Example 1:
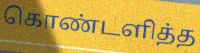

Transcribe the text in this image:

கொண்டளித்த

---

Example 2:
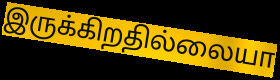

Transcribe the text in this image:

இருக்கிறதில்லையா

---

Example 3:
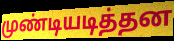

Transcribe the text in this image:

முண்டியடித்தன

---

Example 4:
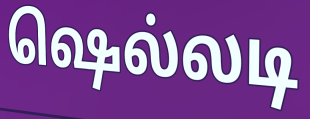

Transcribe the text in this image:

ஷெல்லடி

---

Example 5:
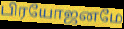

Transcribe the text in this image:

பிரயோஜனமே